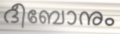
ദീബോനും